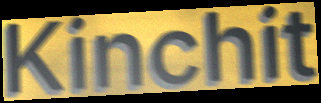
Kinchit